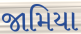
જામિયા